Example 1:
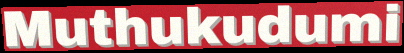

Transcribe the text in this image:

Muthukudumi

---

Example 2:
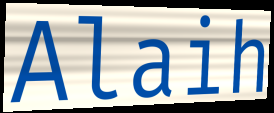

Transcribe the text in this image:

Alaih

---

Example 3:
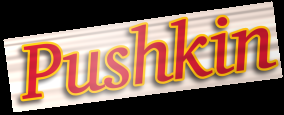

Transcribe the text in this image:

Pushkin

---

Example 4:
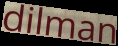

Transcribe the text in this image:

dilman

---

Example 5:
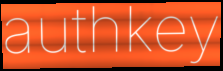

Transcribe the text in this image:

authkey